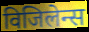
विजिलेन्स